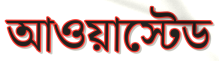
আওয়াস্টেড